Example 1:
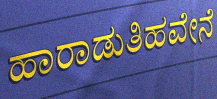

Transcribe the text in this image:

ಹಾರಾಡುತಿಹವೇನೆ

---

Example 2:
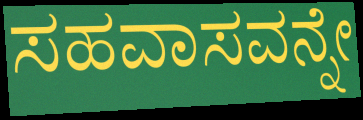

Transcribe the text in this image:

ಸಹವಾಸವನ್ನೇ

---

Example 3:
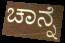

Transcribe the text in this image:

ಚಾನ್ನೆ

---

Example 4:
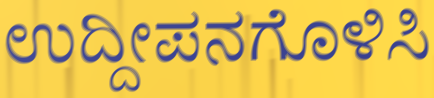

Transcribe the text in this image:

ಉದ್ದೀಪನಗೊಳಿಸಿ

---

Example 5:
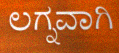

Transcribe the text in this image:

ಲಗ್ನವಾಗಿ